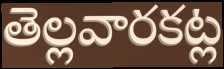
తెల్లవారకట్ల